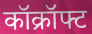
कॉक्रॉफ्ट